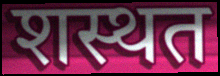
शस्थत